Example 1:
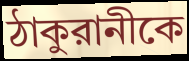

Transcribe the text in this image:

ঠাকুরানীকে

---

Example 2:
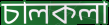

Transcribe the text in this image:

চালকলা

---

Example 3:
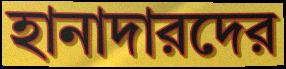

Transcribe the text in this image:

হানাদারদের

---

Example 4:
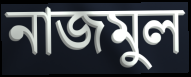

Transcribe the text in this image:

নাজমুল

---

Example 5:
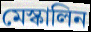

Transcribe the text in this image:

মেস্কালিন